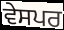
ਵੇਸਪਰ